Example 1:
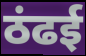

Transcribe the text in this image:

ठंढई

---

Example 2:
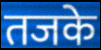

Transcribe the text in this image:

तजके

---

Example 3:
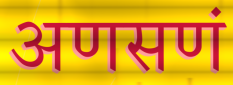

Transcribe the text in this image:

अणसणं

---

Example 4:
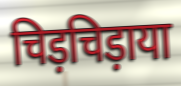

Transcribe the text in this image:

चिड़चिड़ाया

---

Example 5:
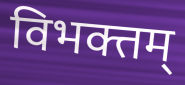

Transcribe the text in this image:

विभक्तम्